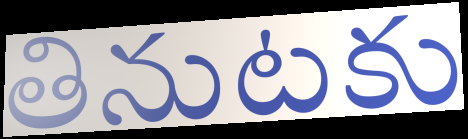
తినుటకు